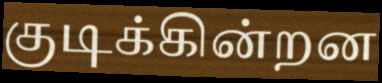
குடிக்கின்றன